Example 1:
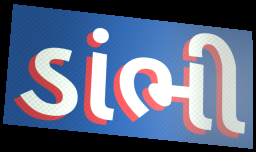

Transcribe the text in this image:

ડાંભી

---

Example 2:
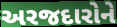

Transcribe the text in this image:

અરજદારોને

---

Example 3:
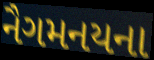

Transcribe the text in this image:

નૈગમનયના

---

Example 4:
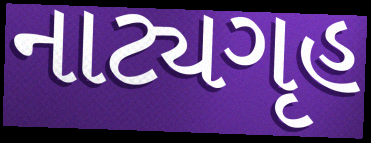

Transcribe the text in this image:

નાટ્યગૃહ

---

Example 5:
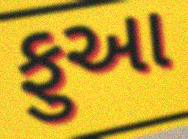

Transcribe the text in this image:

ફુઆ